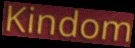
Kindom